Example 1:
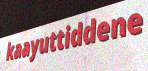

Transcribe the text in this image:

kaayuttiddene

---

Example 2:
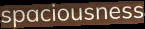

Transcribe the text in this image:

spaciousness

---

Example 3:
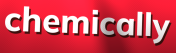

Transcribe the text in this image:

chemically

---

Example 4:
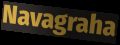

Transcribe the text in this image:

Navagraha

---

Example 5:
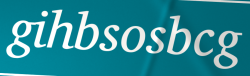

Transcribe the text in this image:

gihbsosbcg